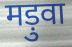
मड़ुवा